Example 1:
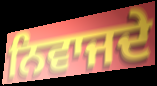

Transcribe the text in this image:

ਨਿਵਾਜਦੇ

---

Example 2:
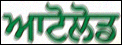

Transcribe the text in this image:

ਆਟੋਲੋਡ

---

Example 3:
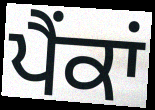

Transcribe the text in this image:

ਪੈਂਕਾਂ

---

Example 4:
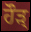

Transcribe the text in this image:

ਹੌੜ੍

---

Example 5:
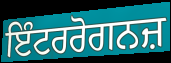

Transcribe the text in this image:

ਇੰਟਰਰੋਗਨਜ਼